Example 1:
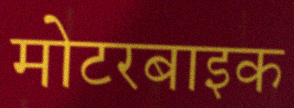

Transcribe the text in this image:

मोटरबाइक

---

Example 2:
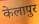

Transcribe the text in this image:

केलापुर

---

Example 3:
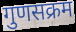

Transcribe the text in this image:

गुणसक्रम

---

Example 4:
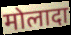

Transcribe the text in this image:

मोलादा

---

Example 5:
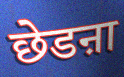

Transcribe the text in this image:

छेडऩा